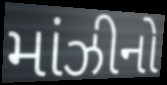
માંઝીનો